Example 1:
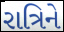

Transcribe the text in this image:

રાત્રિને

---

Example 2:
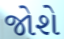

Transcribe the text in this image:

જોશે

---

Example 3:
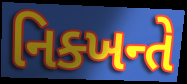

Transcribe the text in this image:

નિક્ખન્તે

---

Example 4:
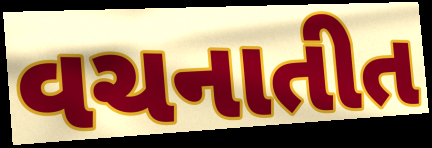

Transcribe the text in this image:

વચનાતીત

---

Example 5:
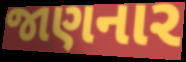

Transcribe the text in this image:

જાણનાર